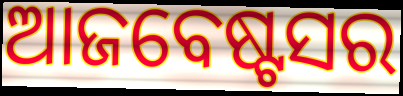
ଆଜବେଷ୍ଟସର